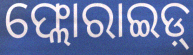
ଫ୍ଲୋରାଇଡ଼୍